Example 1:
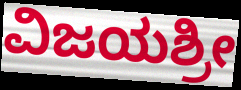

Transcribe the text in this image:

ವಿಜಯಶ್ರೀ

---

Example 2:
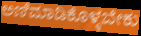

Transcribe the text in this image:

ಅಣಿಮಾಡಿಕೊಳ್ಳಬೇಕು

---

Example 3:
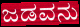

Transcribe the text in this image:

ಜಡವನು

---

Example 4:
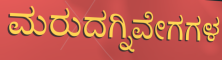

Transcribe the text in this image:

ಮರುದಗ್ನಿವೇಗಗಳ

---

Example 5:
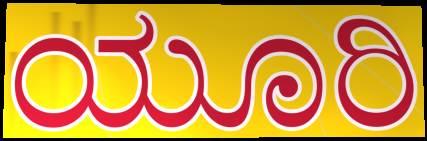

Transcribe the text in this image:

ಯೂರಿ